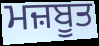
ਮਜ਼ਬੂਤ